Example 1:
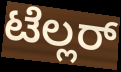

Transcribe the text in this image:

ಟೆಲ್ಲರ್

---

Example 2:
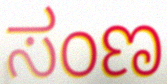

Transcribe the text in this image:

ಸಂಣ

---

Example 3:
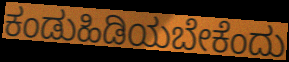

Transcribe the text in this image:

ಕಂಡುಹಿಡಿಯಬೇಕೆಂದು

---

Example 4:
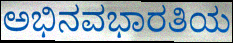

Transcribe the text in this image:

ಅಭಿನವಭಾರತಿಯ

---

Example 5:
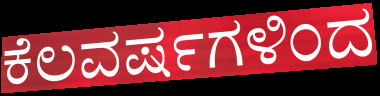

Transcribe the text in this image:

ಕೆಲವರ್ಷಗಳಿಂದ